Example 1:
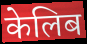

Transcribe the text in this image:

केलिब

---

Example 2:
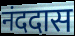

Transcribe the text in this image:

नंददास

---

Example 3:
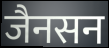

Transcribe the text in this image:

जैनसन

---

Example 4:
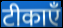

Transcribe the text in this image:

टीकाएँ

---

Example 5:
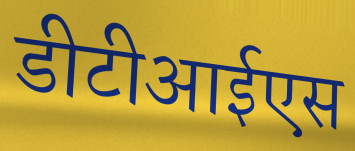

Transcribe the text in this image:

डीटीआईएस